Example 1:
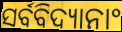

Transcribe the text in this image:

ସର୍ବବିଦ୍ୟାନାଂ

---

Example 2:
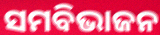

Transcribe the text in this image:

ସମବିଭାଜନ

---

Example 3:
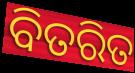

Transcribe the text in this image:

ବିତରିତ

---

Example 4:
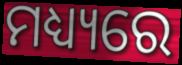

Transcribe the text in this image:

ମଧ୍ୟ୍ୟରେ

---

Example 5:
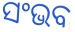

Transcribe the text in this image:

ସଂଭବ